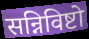
सन्निविष्टो